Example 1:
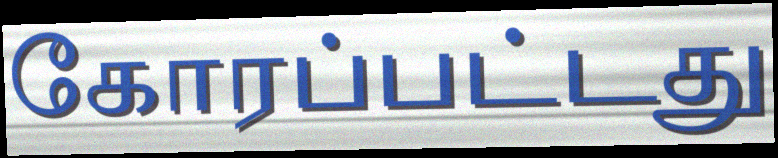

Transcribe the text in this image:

கோரப்பட்டது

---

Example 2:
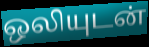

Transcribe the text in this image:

ஒலியுடன்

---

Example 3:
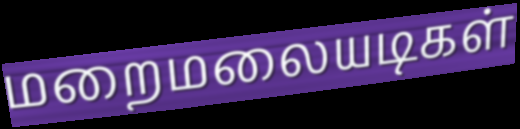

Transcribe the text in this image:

மறைமலையடிகள்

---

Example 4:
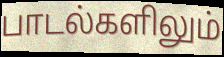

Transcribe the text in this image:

பாடல்களிலும்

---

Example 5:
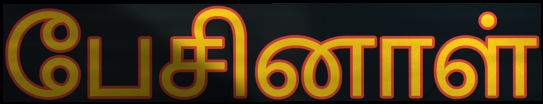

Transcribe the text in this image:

பேசினாள்